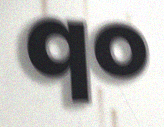
qo